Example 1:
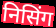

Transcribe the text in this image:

निसिंग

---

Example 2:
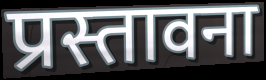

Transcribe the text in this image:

प्रस्‍तावना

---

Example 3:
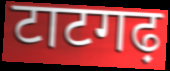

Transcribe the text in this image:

टाटगढ़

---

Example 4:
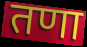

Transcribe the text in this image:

तणा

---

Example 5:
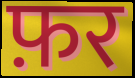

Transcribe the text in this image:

फ़र